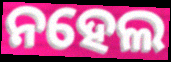
ନହେଲ